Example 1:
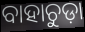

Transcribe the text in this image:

ବାହାଚୁଡ଼ା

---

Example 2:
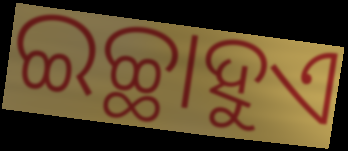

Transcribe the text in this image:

ଇଚ୍ଛାହୁଏ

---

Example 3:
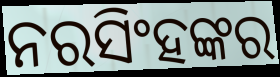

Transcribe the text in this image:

ନରସିଂହଙ୍କର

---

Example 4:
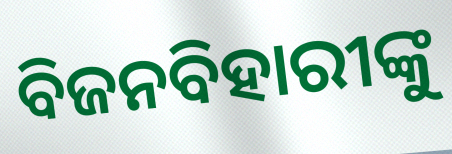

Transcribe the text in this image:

ବିଜନବିହାରୀଙ୍କୁ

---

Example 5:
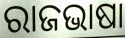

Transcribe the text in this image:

ରାଜଭାଷା